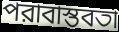
পরাবাস্তবতা